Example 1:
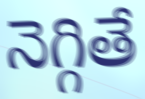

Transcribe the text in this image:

నెగ్గితే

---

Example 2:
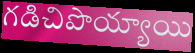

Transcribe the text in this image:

గడిచిపొయ్యాయి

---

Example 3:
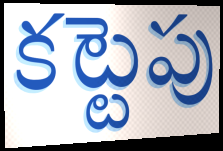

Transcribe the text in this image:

కట్టెపు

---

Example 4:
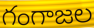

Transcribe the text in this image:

గంగాజల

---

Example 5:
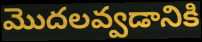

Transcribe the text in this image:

మొదలవ్వడానికి